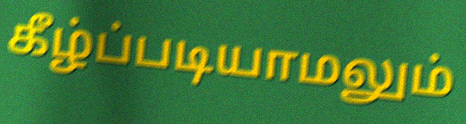
கீழ்ப்படியாமலும்